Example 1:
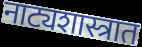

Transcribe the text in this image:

नाट्यशास्त्रात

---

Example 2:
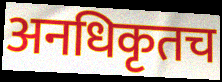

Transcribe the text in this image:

अनधिकृतच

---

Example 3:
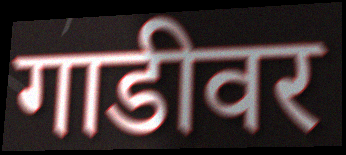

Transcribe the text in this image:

गाडीवर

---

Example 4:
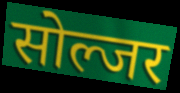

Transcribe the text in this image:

सोल्जर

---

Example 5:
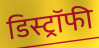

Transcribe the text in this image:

डिस्ट्रॉफी